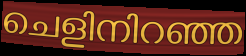
ചെളിനിറഞ്ഞ